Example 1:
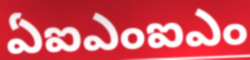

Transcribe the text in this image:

ఏఐఎంఐఎం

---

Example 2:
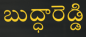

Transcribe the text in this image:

బుద్ధారెడ్డి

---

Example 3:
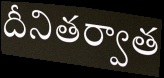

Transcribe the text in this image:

దీనితర్వాత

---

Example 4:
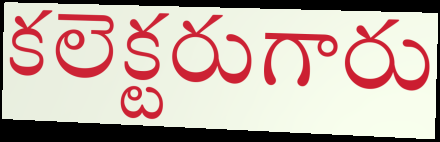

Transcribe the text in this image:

కలెక్టరుగారు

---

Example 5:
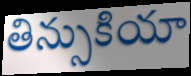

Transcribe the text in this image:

తిన్సుకియా